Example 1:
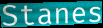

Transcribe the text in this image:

Stanes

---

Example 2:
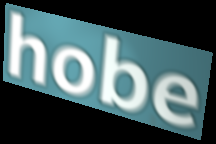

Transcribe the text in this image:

hobe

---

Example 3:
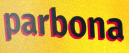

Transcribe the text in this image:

parbona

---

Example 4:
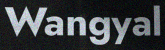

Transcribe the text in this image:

Wangyal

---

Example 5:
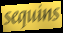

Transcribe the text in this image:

sequins